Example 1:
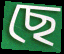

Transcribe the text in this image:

ছে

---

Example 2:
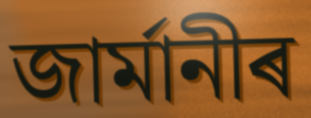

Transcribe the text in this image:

জাৰ্মানীৰ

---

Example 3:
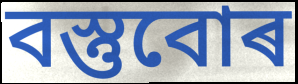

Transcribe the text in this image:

বস্তুবোৰ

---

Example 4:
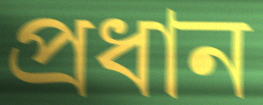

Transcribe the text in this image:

প্ৰধান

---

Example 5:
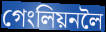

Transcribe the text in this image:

গেংলিয়নলৈ